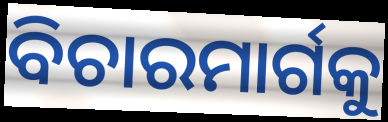
ବିଚାରମାର୍ଗକୁ